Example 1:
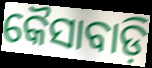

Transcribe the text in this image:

କୈସାବାଡ଼ି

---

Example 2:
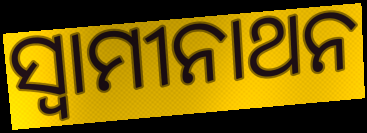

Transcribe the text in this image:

ସ୍ବାମୀନାଥନ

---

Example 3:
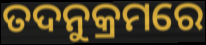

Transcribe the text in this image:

ତଦନୁକ୍ରମରେ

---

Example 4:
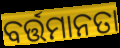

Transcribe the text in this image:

ବର୍ତ୍ତମାନତା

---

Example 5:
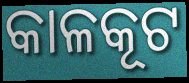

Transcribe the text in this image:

କାଳକୂଟ